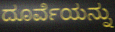
ದೂರ್ವೆಯನ್ನು